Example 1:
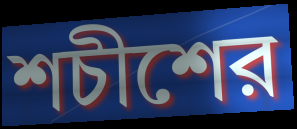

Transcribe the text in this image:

শচীশের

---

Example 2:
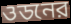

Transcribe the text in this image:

ওডনের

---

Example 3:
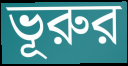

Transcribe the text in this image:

ভূরুর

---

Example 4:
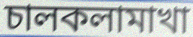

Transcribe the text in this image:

চালকলামাখা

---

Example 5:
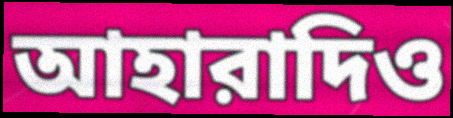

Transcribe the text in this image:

আহারাদিও